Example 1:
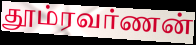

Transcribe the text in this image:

தூம்ரவர்ணன்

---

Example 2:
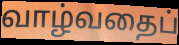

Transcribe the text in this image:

வாழ்வதைப்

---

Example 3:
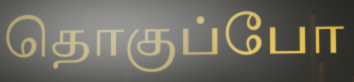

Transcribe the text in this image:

தொகுப்போ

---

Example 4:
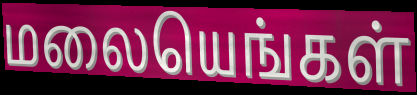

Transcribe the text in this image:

மலையெங்கள்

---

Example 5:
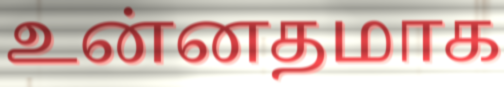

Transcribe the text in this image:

உன்னதமாக